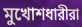
মুখোশধারীরা